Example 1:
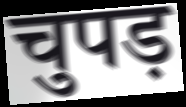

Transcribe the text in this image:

चुपड़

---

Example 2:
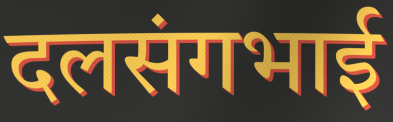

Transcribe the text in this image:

दलसंगभाई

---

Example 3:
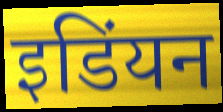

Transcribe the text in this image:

इडिंयन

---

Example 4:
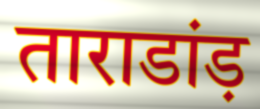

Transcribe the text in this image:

ताराडांड़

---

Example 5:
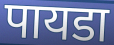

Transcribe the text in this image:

पायडा